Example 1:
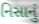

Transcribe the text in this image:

નિસાનું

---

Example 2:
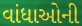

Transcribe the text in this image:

વાંધાઓની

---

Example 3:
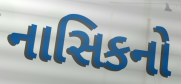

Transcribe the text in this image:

નાસિકનો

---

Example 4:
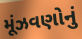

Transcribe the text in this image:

મૂંઝવણોનું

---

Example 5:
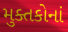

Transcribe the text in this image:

મુક્તકોનાં